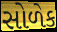
સોળેક